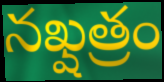
నఖ్షత్రం